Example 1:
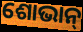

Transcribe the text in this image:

ଶୋଭାନ୍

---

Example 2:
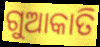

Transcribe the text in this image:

ଗୁଆକାତି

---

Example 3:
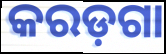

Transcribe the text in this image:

କରଡ଼ଗା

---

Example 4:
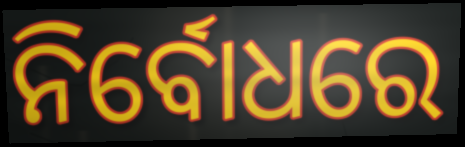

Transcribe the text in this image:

ନିର୍ବୋଧରେ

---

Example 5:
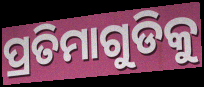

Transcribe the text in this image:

ପ୍ରତିମାଗୁଡିକୁ